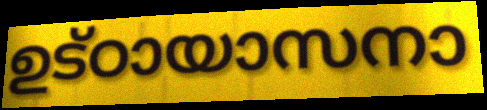
ഉട്ഠായാസനാ